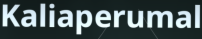
Kaliaperumal